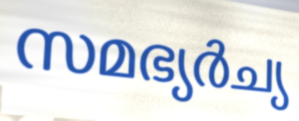
സമഭ്യർച്യ